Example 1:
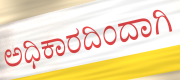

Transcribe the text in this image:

ಅಧಿಕಾರದಿಂದಾಗಿ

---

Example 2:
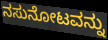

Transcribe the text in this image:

ನಸುನೋಟವನ್ನು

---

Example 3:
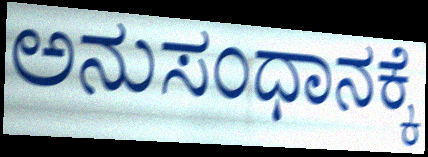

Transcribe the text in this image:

ಅನುಸಂಧಾನಕ್ಕೆ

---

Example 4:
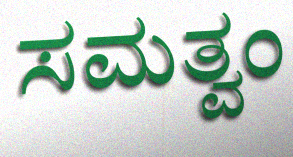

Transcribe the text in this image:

ಸಮತ್ವಂ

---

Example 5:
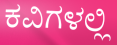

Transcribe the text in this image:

ಕವಿಗಳಲ್ಲಿ